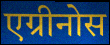
एग्रीनोस